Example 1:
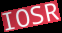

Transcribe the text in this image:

IOSR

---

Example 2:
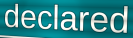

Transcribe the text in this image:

declared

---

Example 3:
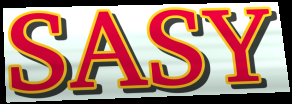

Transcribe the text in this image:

SASY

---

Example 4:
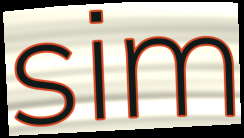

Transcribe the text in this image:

sim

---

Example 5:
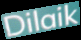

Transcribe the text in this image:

Dilaik